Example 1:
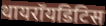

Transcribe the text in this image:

थायरॉयडिटिस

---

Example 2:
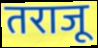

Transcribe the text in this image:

तराजू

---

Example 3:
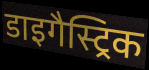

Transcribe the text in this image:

डाइगैस्ट्रिक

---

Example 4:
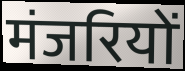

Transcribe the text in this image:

मंजरियों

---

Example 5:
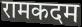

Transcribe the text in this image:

रामकदम